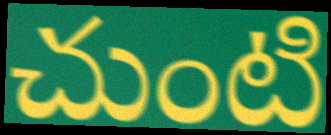
చుంటి